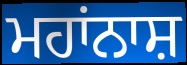
ਮਹਾਂਨਾਸ਼